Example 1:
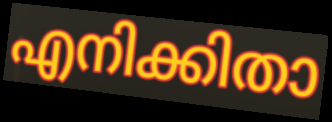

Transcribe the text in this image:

എനിക്കിതാ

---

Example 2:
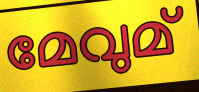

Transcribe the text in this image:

മേവുമ്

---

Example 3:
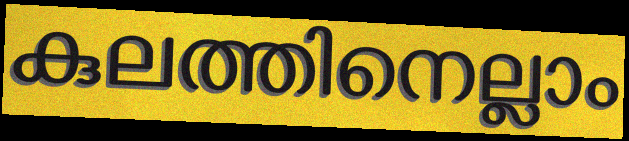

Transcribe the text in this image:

കുലത്തിനെല്ലാം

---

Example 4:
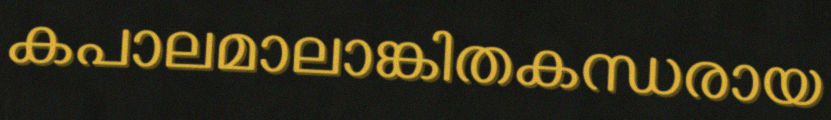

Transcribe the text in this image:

കപാലമാലാങ്കിതകന്ധരായ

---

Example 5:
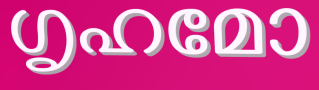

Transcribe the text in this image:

ഗൃഹമോ